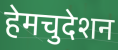
हेमचुदेशन